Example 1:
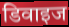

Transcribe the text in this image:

डिवाइज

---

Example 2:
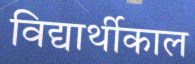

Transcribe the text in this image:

विद्यार्थीकाल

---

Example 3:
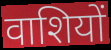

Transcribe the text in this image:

वाशियों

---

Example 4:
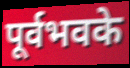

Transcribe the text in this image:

पूर्वभवके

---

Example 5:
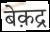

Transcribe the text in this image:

बेक़द्र